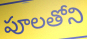
పూలతోని